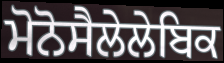
ਮੋਨੋਸੈਲੇਲੇਬਿਕ